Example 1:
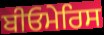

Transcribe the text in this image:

ਬੀਓਮੇਰਿਸ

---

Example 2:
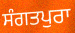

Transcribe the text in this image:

ਸੰਗਤਪੁਰਾ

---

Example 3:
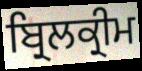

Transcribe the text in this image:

ਬ੍ਰਿਲਕ੍ਰੀਮ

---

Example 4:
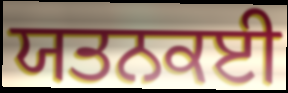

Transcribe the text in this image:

ਯਤਨਕਈ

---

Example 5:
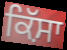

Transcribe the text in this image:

ਕ਼ਿੱਸਾ